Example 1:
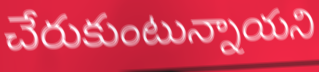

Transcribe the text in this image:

చేరుకుంటున్నాయని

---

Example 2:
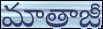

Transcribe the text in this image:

మాతాజీ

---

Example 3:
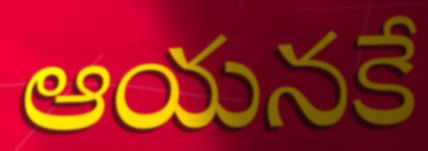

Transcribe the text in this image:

ఆయనకే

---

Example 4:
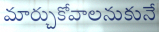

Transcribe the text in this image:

మార్చుకోవాలనుకునే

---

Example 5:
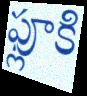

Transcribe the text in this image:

ఫ్లూకి